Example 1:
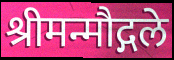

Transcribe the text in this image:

श्रीमन्मौद्गले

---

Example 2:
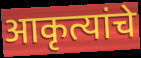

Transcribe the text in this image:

आकृत्यांचे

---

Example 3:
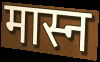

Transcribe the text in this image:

मास्न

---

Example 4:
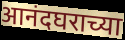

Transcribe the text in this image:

आनंदघराच्या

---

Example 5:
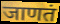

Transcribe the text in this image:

जाणतं